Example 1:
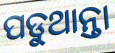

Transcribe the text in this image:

ପଡୁଥାନ୍ତା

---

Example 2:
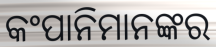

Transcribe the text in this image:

କଂପାନିମାନଙ୍କର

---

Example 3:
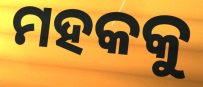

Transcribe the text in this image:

ମହକକୁ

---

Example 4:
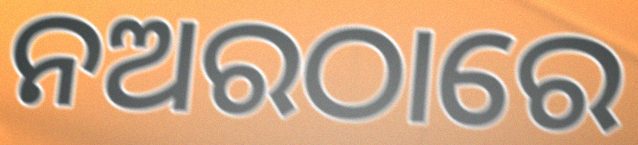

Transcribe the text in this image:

ନଅରଠାରେ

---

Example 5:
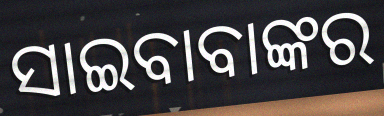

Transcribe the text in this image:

ସାଇବାବାଙ୍କର